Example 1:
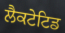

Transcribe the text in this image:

ਲੈਕਟੇਟਿਡ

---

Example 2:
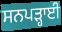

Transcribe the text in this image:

ਸਨਪੜ੍ਹਾਈ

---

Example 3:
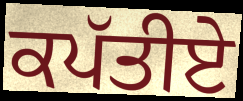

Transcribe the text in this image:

ਕਪੱਤੀਏ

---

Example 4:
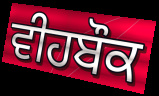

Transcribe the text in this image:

ਵੀਹਬੌਕ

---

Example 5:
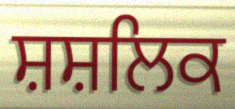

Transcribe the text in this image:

ਸ਼ਸ਼ਲਿਕ